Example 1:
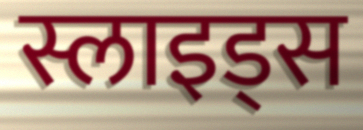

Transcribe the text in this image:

स्लाइड्स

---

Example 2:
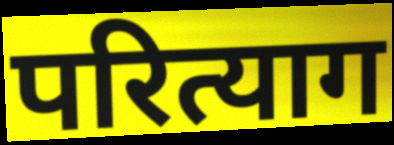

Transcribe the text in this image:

परित्याग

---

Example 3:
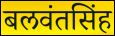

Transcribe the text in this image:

बलवंतसिंह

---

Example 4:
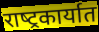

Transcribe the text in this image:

राष्ट्रकार्यात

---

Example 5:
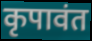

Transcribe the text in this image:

कृपावंत